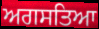
ਅਗਸਤਿਆ